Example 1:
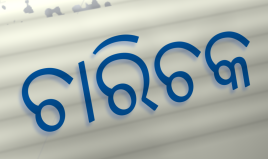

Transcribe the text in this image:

ଚାରିଚକ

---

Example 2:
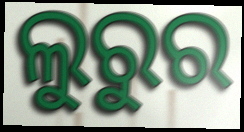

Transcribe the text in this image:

ଲୁରୁର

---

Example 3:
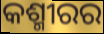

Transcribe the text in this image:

କଶ୍ମୀରର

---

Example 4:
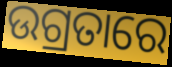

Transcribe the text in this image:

ଉଗ୍ରତାରେ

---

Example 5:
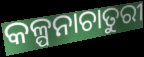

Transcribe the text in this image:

କଳ୍ପନାଚାତୁରୀ